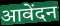
आवेंदन